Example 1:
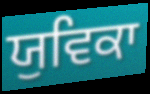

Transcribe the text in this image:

ਯੁਵਿਕਾ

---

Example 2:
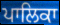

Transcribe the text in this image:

ਪਾਲਿਕਾ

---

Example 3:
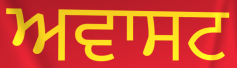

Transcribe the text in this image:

ਅਵਾਸਟ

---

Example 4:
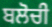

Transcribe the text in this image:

ਬਲੋਚੀ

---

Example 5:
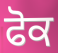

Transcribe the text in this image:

ਫੋਕ